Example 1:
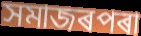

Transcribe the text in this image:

সমাজৰপৰা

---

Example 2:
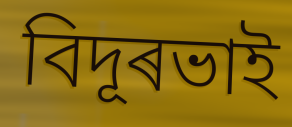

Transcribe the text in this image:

বিদূৰভাই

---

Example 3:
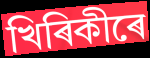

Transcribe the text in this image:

খিৰিকীৰে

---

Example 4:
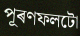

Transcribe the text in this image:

পূৰণফলটো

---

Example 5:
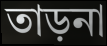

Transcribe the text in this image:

তাড়না